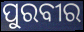
ପୁରବୀର